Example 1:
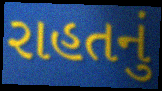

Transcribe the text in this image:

રાહતનું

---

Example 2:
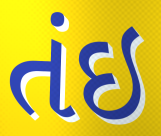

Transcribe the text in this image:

તંઇ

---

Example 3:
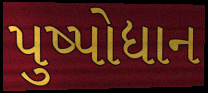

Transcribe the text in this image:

પુષ્પોદ્યાન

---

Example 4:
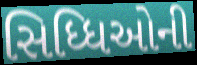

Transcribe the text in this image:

સિધ્ધિઓની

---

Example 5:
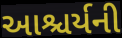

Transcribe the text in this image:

આશ્ચર્યની